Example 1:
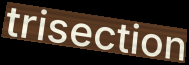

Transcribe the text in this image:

trisection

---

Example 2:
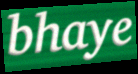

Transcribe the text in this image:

bhaye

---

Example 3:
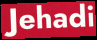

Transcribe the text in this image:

Jehadi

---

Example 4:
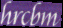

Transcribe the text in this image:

hrcbm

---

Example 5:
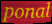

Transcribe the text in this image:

ponal